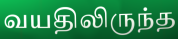
வயதிலிருந்த